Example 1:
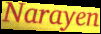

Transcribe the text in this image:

Narayen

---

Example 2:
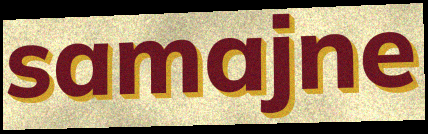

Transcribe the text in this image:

samajne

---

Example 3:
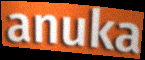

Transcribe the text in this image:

anuka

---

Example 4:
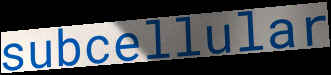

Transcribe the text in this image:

subcellular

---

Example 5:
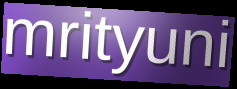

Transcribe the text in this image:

mrityuni